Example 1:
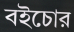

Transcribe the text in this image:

বইচোর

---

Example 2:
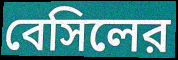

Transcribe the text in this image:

বেসিলের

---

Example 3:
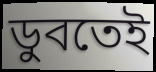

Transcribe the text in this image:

ডুবতেই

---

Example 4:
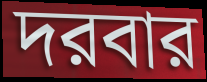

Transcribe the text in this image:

দরবার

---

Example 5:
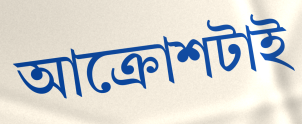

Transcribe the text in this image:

আক্রোশটাই